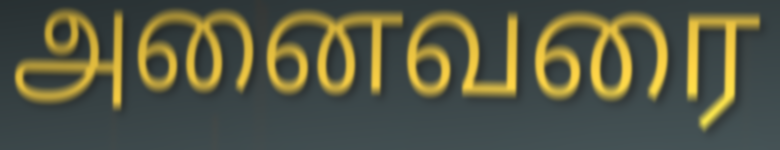
அனைவரை